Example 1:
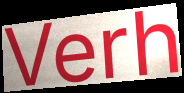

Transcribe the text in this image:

Verh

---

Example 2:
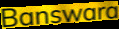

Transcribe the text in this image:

Banswara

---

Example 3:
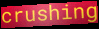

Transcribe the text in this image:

crushing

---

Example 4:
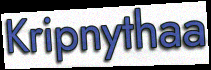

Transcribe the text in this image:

Kripnythaa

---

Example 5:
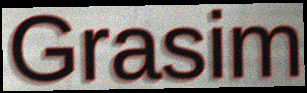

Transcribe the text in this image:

Grasim